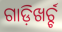
ଗାଡ଼ିଖର୍ଚ୍ଚ